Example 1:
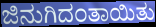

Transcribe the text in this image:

ಜಿನುಗಿದಂತಾಯಿತು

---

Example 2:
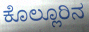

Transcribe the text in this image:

ಕೊಲ್ಲೂರಿನ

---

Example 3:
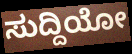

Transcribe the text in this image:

ಸುದ್ದಿಯೋ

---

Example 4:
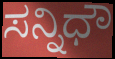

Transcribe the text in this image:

ಸನ್ನಿಧೌ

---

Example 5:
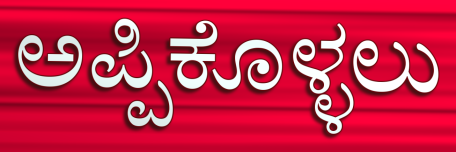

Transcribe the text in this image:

ಅಪ್ಪಿಕೊಳ್ಳಲು